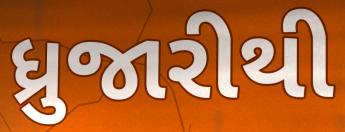
ધ્રુજારીથી